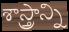
శాస్త్రాన్ని